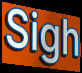
Sigh